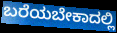
ಬರೆಯಬೇಕಾದಲ್ಲಿ